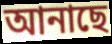
আনাছে